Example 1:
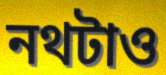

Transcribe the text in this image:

নথটাও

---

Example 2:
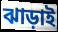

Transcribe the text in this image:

ঝাড়াই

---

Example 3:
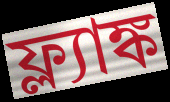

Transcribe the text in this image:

ফ্ল্যাঙ্ক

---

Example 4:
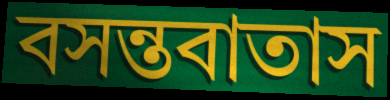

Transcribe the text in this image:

বসন্তবাতাস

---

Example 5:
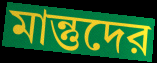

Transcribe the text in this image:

মান্তুদের